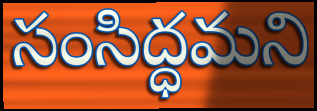
సంసిద్ధమని